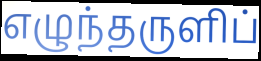
எழுந்தருளிப்